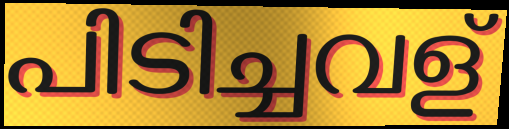
പിടിച്ചവള്